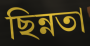
ছিন্নতা